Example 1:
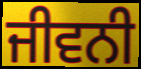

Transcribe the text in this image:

ਜੀਵਨੀ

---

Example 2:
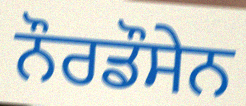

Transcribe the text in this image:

ਨੌਰਡੌਸੇਨ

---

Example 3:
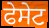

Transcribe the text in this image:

ਫੇਸੇਟ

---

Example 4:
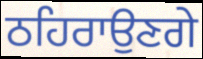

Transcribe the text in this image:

ਠਹਿਰਾਉਣਗੇ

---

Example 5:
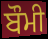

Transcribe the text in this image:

ਬੌਮੀ